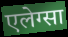
एलेग्सा